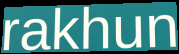
rakhun